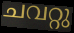
ചവറ്റു